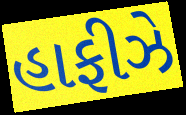
હાફીઝે